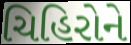
ચિહિરોને